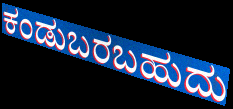
ಕಂಡುಬರಬಹುದು